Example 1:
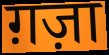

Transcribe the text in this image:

ग़ज़ा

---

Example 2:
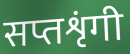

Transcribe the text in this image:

सप्तशृंगी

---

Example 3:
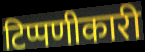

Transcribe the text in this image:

टिप्पणीकारी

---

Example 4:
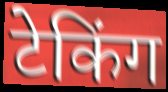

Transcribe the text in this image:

टेकिंग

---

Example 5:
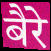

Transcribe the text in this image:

बैरे